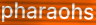
pharaohs